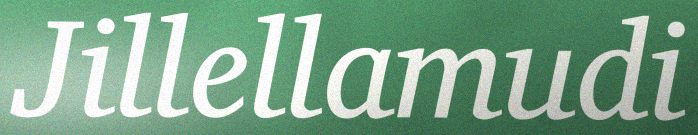
Jillellamudi